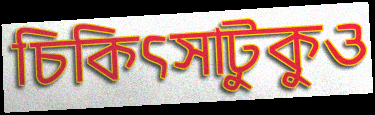
চিকিৎসাটুকুও